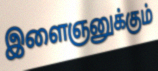
இளைஞனுக்கும்